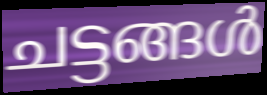
ചട്ടങ്ങൾ